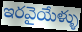
ఇరవైయేళ్ళు